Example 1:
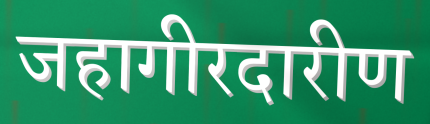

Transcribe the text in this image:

जहागीरदारीण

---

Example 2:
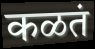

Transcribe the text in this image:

कळतं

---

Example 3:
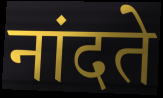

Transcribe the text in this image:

नांदते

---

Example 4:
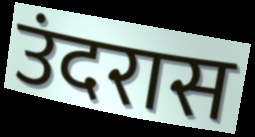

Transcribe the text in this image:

उंदरास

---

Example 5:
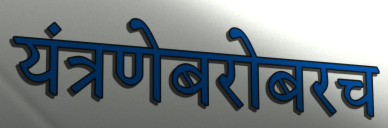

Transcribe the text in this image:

यंत्रणेबरोबरच